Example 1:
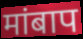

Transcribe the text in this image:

मांबाप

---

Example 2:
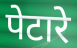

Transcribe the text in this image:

पेटारे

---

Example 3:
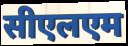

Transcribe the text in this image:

सीएलएम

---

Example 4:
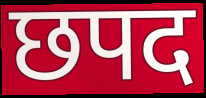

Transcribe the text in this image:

छपद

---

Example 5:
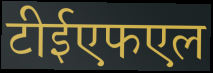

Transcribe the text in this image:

टीईएफएल